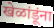
खेळांडूंना